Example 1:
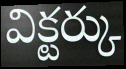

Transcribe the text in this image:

విక్టర్కు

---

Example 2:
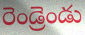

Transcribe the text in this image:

రెండ్రెండు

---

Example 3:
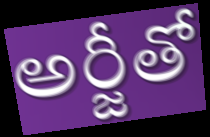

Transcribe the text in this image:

అర్జీతో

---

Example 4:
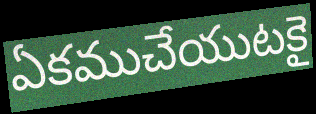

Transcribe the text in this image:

ఏకముచేయుటకై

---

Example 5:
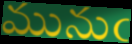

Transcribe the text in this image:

మునుఁ